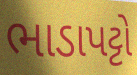
ભાડાપટ્ટો